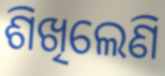
ଶିଖିଲେଣି